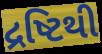
દ્રષ્ટિથી